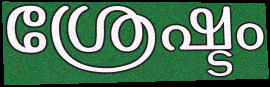
ശ്രേഷ്ടം